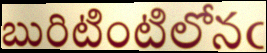
బురిటింటిలోనఁ